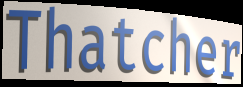
Thatcher